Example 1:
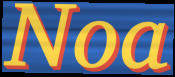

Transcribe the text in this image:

Noa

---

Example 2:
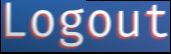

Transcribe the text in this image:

Logout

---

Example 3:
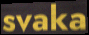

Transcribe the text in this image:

svaka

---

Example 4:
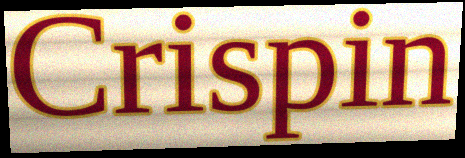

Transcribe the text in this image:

Crispin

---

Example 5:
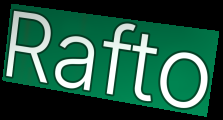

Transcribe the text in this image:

Rafto